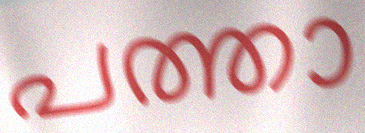
പത്താ